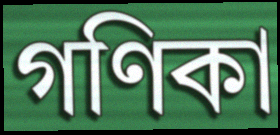
গণিকা